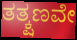
ತತ್ಕ್ಷಣವೇ